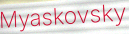
Myaskovsky